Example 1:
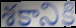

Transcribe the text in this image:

శకానికి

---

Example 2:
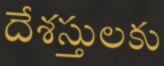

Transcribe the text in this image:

దేశస్తులకు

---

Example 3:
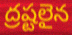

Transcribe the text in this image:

ద్రష్టలైన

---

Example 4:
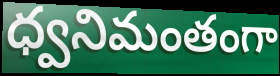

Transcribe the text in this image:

ధ్వనిమంతంగా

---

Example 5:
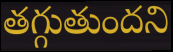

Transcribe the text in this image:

తగ్గుతుందని